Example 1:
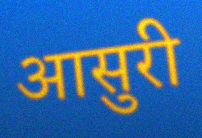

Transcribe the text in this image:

आसुरी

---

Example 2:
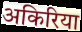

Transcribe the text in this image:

अकिरिया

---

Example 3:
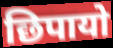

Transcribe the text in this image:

छिपायो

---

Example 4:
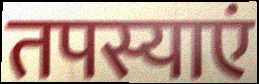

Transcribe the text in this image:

तपस्याएं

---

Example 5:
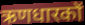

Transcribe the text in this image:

ऋणधारकों